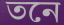
তনে